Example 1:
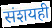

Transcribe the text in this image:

संशयही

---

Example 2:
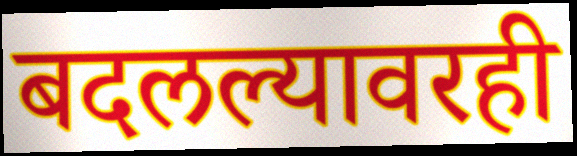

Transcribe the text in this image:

बदलल्यावरही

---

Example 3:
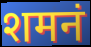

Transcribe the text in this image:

शमनं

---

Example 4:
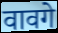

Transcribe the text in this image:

वावगे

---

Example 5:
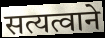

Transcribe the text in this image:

सत्यत्वाने